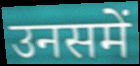
उनसमें